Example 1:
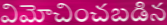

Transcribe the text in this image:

విమోచించబడిన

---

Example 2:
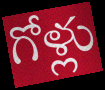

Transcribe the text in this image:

గోళ్లు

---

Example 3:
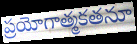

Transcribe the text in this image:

ప్రయోగాత్మకతనూ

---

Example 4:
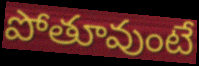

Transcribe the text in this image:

పోతూవుంటే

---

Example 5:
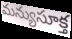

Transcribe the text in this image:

మన్యుసూక్త